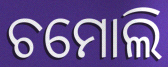
ଚମୋଲି